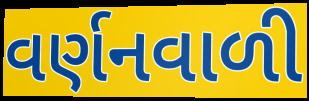
વર્ણનવાળી